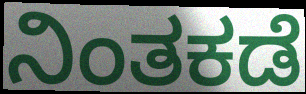
ನಿಂತಕಡೆ